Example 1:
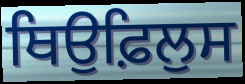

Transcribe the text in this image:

ਥਿਉਫ਼ਿਲੁਸ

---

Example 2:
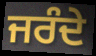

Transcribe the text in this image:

ਜਰੰਦੇ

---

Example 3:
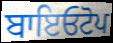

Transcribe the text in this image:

ਬਾਇਓਟੋਪ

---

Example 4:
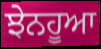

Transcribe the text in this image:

ਝੇਨਹੂਆ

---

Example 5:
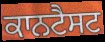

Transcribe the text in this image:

ਕਾਨਟੈਸਟ